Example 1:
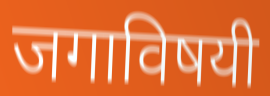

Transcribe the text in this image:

जगाविषयी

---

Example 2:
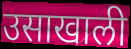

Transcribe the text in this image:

उसाखाली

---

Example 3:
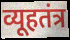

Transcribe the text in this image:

व्यूहतंत्र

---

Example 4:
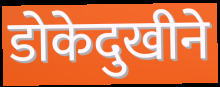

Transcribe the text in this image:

डोकेदुखीने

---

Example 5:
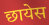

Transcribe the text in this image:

छायेस